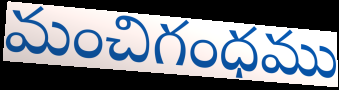
మంచిగంధము